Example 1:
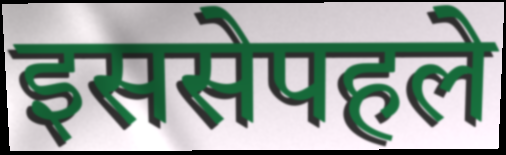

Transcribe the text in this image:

इससेपहले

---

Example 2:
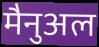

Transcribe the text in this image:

मैनुअल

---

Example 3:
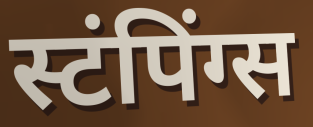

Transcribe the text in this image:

स्टंपिंग्स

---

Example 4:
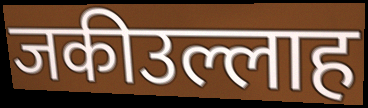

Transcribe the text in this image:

जकीउल्लाह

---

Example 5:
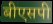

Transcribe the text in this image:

बीएसपी